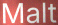
Malt